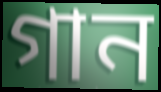
গান